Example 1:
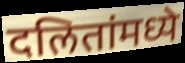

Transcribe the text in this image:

दलितांमध्ये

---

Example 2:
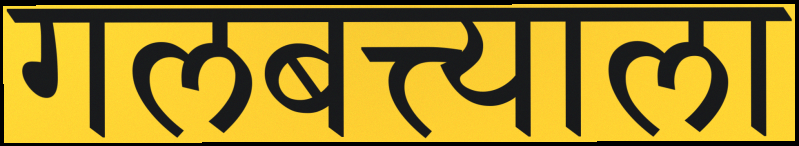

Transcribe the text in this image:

गलबत्त्याला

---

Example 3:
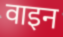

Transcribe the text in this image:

वाइन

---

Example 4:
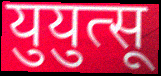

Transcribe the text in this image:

युयुत्सू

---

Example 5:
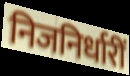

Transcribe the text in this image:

निजनिर्धारीं